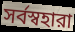
সর্বস্বহারা